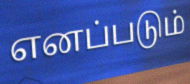
எனப்படும்